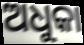
ଅଧୁକା